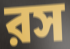
রস